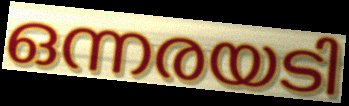
ഒന്നരയടി